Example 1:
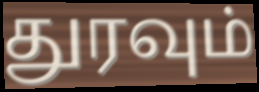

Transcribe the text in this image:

துரவும்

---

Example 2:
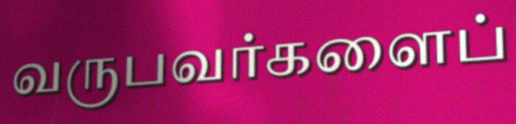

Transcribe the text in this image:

வருபவர்களைப்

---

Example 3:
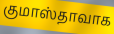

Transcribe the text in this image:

குமாஸ்தாவாக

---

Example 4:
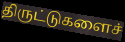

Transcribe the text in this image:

திருட்டுகளைச்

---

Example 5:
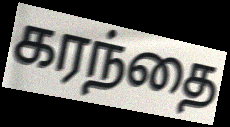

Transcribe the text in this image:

கரந்தை